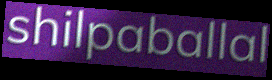
shilpaballal